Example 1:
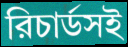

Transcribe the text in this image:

রিচার্ডসই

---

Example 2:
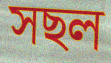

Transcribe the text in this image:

সছল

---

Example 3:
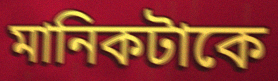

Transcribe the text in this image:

মানিকটাকে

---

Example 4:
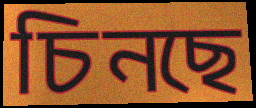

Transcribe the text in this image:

চিনছে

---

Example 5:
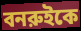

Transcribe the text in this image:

বনরুইকে